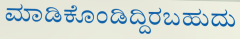
ಮಾಡಿಕೊಂಡಿದ್ದಿರಬಹುದು